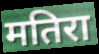
मतिरा